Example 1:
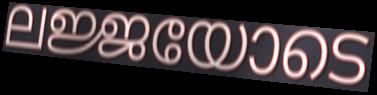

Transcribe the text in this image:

ലജ്ജയോടെ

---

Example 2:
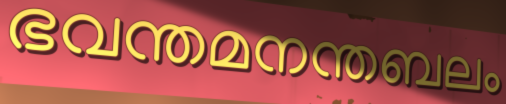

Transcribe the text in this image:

ഭവന്തമനന്തബലം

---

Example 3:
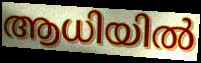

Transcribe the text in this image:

ആധിയിൽ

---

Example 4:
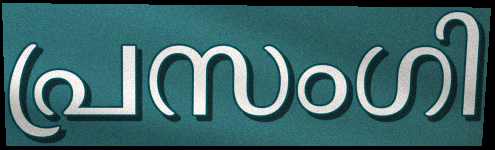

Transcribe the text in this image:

പ്രസംഗി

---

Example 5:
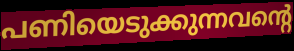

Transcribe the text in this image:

പണിയെടുക്കുന്നവന്റെ